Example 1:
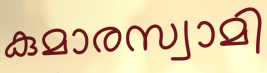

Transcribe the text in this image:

കുമാരസ്വാമി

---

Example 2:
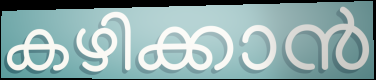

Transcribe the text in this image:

കഴിക്കാൻ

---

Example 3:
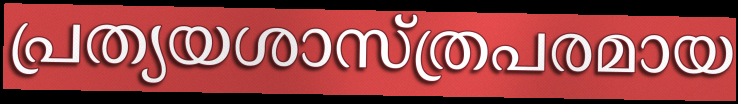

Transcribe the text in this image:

പ്രത്യയശാസ്ത്രപരമായ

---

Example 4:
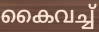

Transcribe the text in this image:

കൈവച്ച്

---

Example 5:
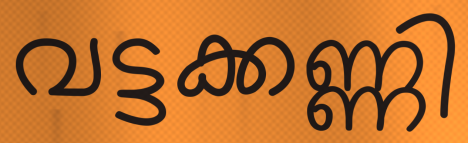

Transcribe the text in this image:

വട്ടക്കണ്ണി